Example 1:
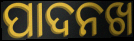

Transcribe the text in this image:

ପାଦନଖ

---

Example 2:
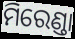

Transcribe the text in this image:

ମିରେଣ୍ଡା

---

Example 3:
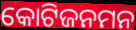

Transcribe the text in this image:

କୋଟିଜନମନ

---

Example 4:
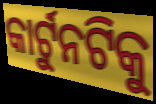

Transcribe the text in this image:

କାର୍ଟୁନଟିକୁ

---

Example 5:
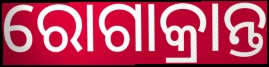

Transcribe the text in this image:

ରୋଗାକ୍ରାନ୍ତ